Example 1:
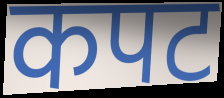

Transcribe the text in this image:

कपट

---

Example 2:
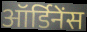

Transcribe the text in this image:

ऑर्डिनेंस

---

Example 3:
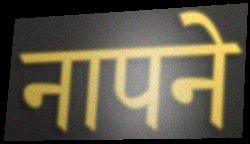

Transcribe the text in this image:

नापने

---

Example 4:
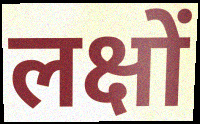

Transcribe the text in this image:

लक्षों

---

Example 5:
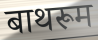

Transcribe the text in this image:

बाथरूम